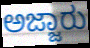
ಅಜ್ಜಾರು